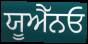
ਯੂਐੱਨਓ